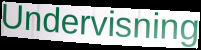
Undervisning